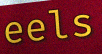
eels